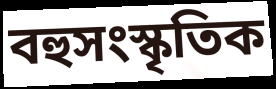
বহুসংস্কৃতিক